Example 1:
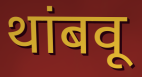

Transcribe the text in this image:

थांबवू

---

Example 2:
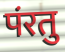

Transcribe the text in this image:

पंरतु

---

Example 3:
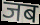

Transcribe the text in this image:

जब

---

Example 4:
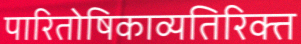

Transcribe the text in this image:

पारितोषिकाव्यतिरिक्त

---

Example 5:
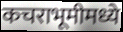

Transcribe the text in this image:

कचराभूमीमध्ये